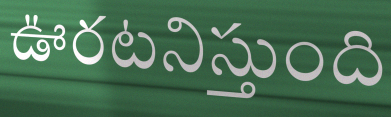
ఊరటనిస్తుంది